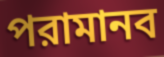
পরামানব